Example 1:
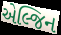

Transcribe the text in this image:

એલ્જિન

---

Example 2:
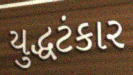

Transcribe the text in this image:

યુદ્ધટંકાર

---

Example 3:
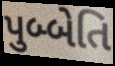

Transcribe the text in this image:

પુબ્બેતિ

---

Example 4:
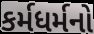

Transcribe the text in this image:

કર્મધર્મનો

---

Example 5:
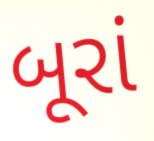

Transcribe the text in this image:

બૂરાં